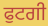
ਫੁਟਗੀ